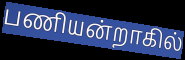
பணியன்றாகில்